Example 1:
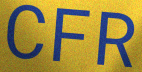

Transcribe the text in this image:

CFR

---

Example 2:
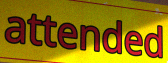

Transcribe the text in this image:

attended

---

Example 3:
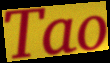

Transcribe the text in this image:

Tao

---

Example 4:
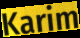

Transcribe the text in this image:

Karim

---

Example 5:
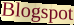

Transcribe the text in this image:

Blogspot